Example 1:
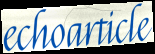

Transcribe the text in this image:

echoarticle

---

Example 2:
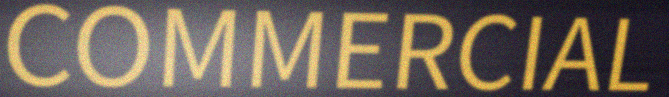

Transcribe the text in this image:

COMMERCIAL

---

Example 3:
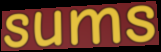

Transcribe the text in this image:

sums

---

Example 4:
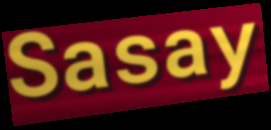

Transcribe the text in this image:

Sasay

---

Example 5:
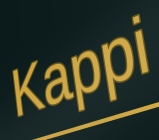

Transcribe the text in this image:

Kappi